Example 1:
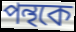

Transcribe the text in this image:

পন্থকে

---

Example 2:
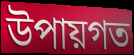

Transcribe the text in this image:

উপায়গত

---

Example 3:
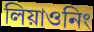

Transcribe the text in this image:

লিয়াওনিং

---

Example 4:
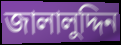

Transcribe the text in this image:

জালালুদ্দিন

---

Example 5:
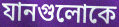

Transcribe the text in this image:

যানগুলোকে